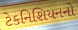
ટેકનિશિયનનો